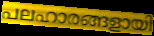
പലഹാരങ്ങളായി